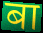
बा